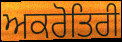
ਅਕਰੋਤਿਰੀ